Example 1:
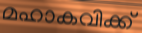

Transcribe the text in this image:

മഹാകവിക്ക്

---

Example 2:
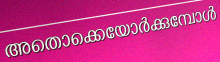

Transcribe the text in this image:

അതൊക്കെയോർക്കുമ്പോൾ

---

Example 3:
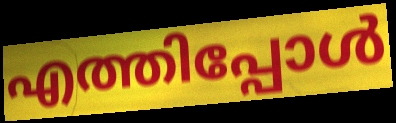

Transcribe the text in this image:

എത്തിപ്പോൾ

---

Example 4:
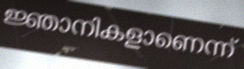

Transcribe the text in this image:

ജ്ഞാനികളാണെന്ന്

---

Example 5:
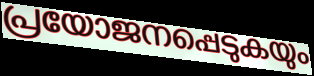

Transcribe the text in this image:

പ്രയോജനപ്പെടുകയും